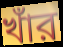
খাঁর